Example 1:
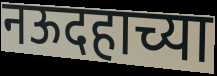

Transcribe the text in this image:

नऊदहाच्या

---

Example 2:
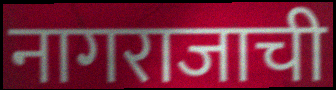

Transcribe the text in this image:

नागराजाची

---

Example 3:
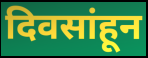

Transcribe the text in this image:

दिवसांहून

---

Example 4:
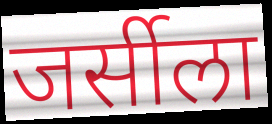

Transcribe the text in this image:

जर्सीला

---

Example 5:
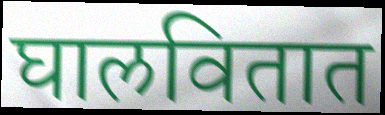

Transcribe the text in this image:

घालवितात